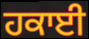
ਹਕਾਈ